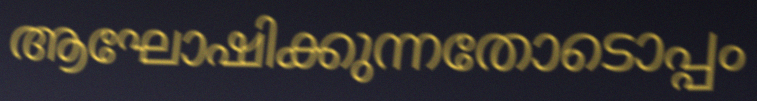
ആഘോഷിക്കുന്നതോടൊപ്പം